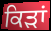
ਕਿੜਾਂ